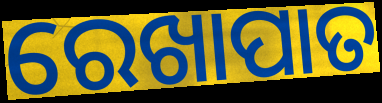
ରେଖାପାତ